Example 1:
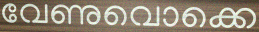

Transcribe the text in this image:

വേണുവൊക്കെ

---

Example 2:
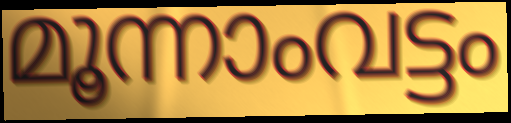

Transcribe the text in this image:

മൂന്നാംവട്ടം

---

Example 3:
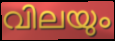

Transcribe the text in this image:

വിലയും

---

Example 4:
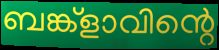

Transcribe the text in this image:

ബങ്ക്ളാവിന്റെ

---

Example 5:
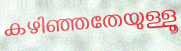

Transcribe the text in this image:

കഴിഞ്ഞതേയുള്ളൂ